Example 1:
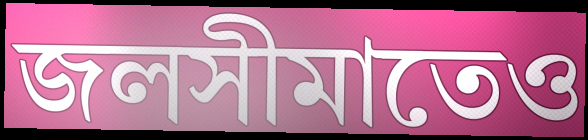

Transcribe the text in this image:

জলসীমাতেও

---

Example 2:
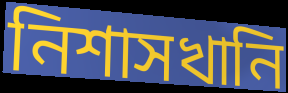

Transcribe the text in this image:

নিশাসখানি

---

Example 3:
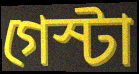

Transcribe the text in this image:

গেস্টা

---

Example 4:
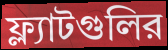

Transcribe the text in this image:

ফ্ল্যাটগুলির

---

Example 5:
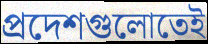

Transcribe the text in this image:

প্রদেশগুলোতেই